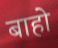
बाहो